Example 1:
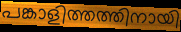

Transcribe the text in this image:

പങ്കാളിത്തത്തിനായി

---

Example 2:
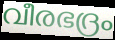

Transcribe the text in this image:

വീരഭദ്രം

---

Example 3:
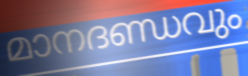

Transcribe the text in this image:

മാനദണ്ഡവും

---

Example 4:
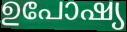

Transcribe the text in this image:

ഉപോഷ്യ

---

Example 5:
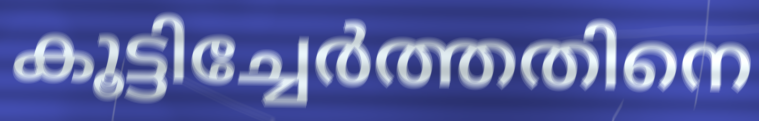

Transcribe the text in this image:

കൂട്ടിച്ചേർത്തതിനെ